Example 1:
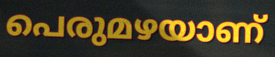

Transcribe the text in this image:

പെരുമഴയാണ്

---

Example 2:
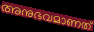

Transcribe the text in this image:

അനുഭവമാണത്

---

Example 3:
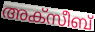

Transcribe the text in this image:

അക്സീബ്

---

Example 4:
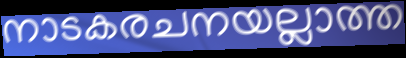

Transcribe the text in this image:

നാടകരചനയല്ലാത്ത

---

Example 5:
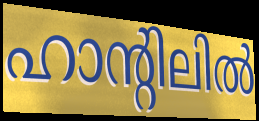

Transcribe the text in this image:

ഹാന്റിലിൽ